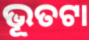
ଭୂତଟା